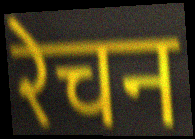
रेचन